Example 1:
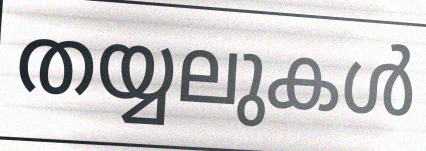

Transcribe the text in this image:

തയ്യലുകൾ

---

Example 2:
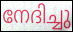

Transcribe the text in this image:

നേദിച്ചു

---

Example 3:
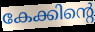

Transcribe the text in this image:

കേക്കിന്റെ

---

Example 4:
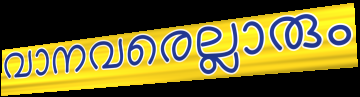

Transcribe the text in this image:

വാനവരെല്ലാരും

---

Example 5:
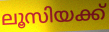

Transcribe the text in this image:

ലൂസിയക്ക്